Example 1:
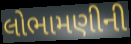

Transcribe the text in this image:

લોભામણીની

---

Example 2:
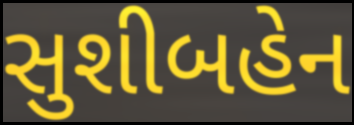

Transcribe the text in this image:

સુશીબહેન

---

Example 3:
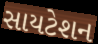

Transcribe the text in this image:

સાયટેશન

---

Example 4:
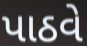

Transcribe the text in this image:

પાઠવે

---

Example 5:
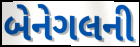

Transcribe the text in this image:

બેનેગલની